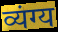
व्यंग्य